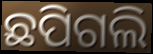
ଛପିଗଲି